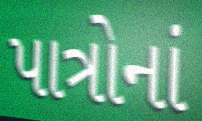
પાત્રોનાં